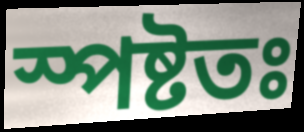
স্পষ্টতঃ